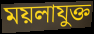
ময়লাযুক্ত